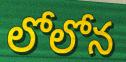
లోలోన